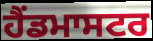
ਹੈਂਡਮਾਸਟਰ